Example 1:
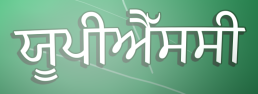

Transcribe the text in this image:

ਯੂਪੀਐੱਸਸੀ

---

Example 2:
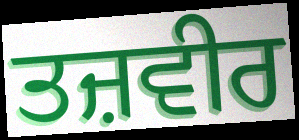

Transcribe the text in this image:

ਤਜ਼ਵੀਰ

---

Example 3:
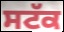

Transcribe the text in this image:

ਸਟੱਕ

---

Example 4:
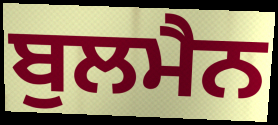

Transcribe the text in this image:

ਬੁਲਮੈਨ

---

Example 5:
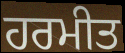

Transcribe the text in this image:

ਹਰਮੀਤ